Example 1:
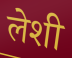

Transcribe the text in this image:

लेशी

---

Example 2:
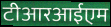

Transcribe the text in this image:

टीआरआईएम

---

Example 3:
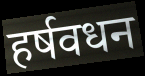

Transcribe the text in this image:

हर्षवधन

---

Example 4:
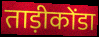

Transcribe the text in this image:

ताड़ीकोंडा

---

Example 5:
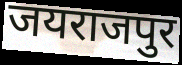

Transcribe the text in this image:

जयराजपुर